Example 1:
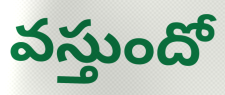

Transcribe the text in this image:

వస్తుందో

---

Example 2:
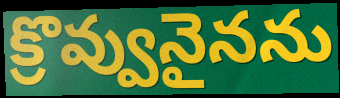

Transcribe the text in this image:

క్రొవ్వునైనను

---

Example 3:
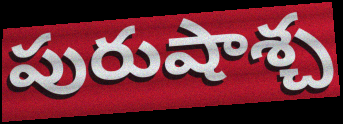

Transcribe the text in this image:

పురుషాశ్చ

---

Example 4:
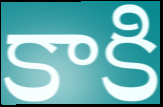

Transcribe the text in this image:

కాకి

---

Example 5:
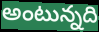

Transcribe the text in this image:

అంటున్నది